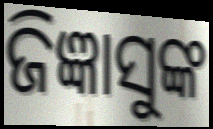
ଜିଜ୍ଞାସୁଙ୍କ